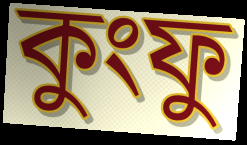
কুংফু